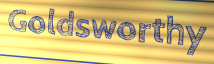
Goldsworthy